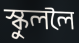
স্কুললৈ